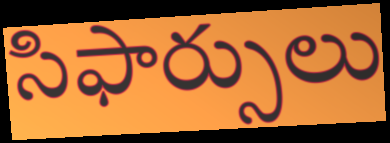
సిఫార్సులు